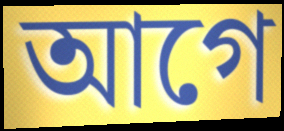
আগে